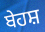
ਬੇਹਸ਼